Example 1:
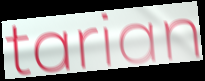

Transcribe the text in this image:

tarian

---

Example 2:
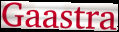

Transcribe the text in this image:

Gaastra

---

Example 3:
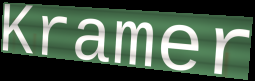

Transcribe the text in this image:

Kramer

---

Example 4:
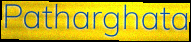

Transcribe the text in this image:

Patharghata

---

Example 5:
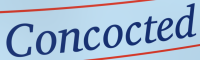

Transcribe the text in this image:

Concocted